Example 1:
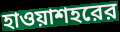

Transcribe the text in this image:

হাওয়াশহরের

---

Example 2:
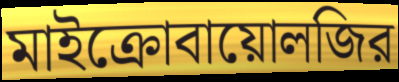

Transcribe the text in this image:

মাইক্রোবায়োলজির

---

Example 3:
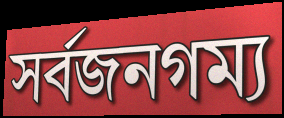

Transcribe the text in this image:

সর্বজনগম্য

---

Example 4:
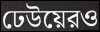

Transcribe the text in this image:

ঢেউয়েরও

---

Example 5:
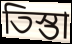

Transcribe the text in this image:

তিস্তা